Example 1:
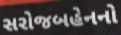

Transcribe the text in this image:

સરોજબહેનનો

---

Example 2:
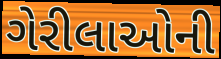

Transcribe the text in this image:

ગેરીલાઓની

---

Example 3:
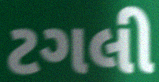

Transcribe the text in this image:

ટગલી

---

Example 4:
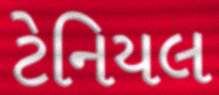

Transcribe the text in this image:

ટેનિયલ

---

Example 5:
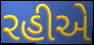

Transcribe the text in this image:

રહીએ